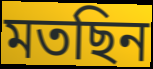
মতছিন